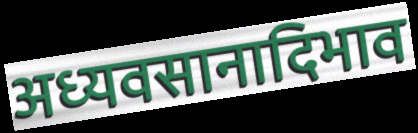
अध्यवसानादिभाव